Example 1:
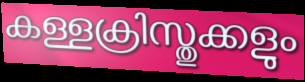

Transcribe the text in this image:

കള്ളക്രിസ്തുക്കളും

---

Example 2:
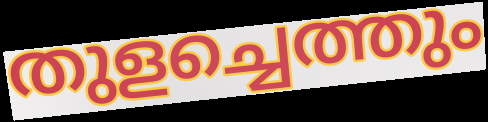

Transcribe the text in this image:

തുളച്ചെത്തും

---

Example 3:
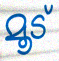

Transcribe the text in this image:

മൂട്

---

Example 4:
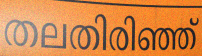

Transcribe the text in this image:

തലതിരിഞ്ഞ്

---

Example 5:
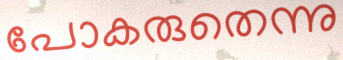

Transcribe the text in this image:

പോകരുതെന്നു